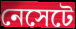
নেসেটে